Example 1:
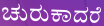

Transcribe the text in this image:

ಚುರುಕಾದರೆ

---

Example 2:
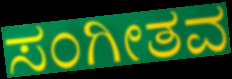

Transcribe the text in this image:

ಸಂಗೀತವ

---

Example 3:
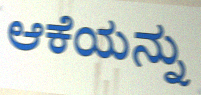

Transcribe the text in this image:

ಆಕೆಯನ್ನು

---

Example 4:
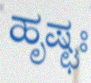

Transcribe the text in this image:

ಹೃಷ್ಟಃ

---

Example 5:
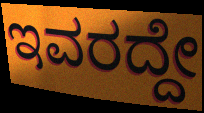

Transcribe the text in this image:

ಇವರದ್ದೇ